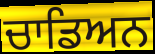
ਚਾਡਿਅਨ